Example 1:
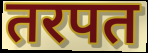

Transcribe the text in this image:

तरपत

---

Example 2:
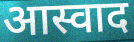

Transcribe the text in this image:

आस्वाद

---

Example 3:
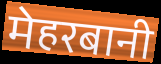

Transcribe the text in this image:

मेहरबानी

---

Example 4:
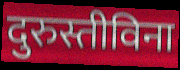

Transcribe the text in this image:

दुरुस्तीविना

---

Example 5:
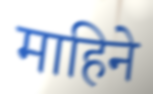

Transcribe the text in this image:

माहिने